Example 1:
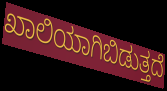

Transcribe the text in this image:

ಖಾಲಿಯಾಗಿಬಿಡುತ್ತದೆ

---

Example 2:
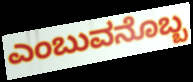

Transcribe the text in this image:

ಎಂಬುವನೊಬ್ಬ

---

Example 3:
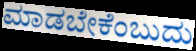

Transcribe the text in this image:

ಮಾಡಬೇಕೆಂಬುದು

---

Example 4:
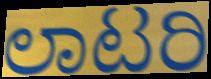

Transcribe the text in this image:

ಲಾಟರಿ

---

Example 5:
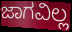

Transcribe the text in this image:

ಜಾಗವಿಲ್ಲ